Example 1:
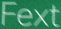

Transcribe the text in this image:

Fext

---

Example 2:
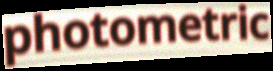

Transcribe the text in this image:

photometric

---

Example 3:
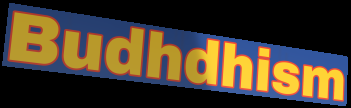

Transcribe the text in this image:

Budhdhism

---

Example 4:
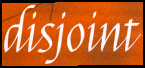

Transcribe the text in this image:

disjoint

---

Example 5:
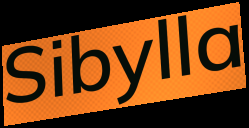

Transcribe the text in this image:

Sibylla